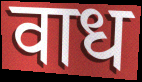
वाध